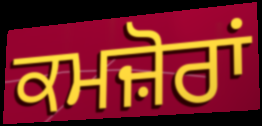
ਕਮਜ਼ੋਰਾਂ